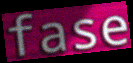
fase